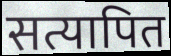
सत्यापित